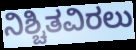
ನಿಶ್ಚಿತವಿರಲು